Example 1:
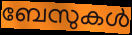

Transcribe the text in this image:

ബേസുകൾ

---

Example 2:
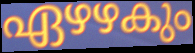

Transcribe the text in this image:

ഏഴഴകും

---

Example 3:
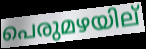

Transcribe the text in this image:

പെരുമഴയില്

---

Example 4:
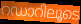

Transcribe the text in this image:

റഡാറിലൂടെ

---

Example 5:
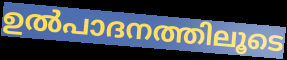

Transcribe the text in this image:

ഉൽപാദനത്തിലൂടെ